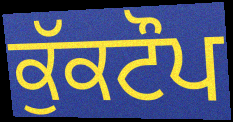
ਕੁੱਕਟੌਪ